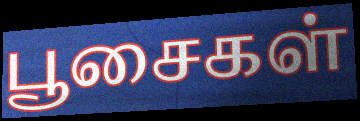
பூசைகள்